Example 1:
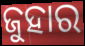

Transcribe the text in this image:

ଜୁହାର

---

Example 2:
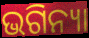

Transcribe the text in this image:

ଭଗିନ୍ୟା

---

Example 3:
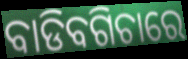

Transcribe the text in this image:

ବାଡିବଗିଚାରେ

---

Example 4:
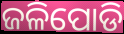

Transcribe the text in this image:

ଜଳିପୋଡି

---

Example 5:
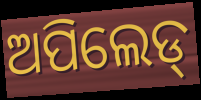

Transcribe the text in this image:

ଅପିଲେଡ୍